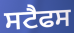
ਸਟੈਫਸ